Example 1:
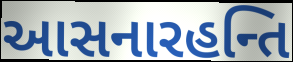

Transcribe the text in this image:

આસનારહન્તિ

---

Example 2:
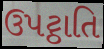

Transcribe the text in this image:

ઉપટ્ઠાતિ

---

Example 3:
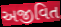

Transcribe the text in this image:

અજીવિત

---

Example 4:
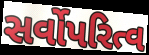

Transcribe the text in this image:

સર્વોપરિત્વ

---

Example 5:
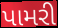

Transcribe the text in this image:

પામરી